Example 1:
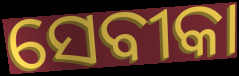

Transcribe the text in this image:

ସେବୀକା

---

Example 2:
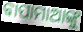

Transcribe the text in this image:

ବାପାମାଆଙ୍କୁ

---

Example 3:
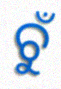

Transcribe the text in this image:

ଚୁଁ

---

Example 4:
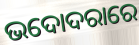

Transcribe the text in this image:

ଭଦୋଦରାରେ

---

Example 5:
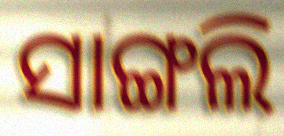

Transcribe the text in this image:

ସାଙ୍ଗଲି